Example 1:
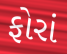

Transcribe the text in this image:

ફોરાં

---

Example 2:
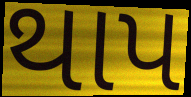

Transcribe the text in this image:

થાપ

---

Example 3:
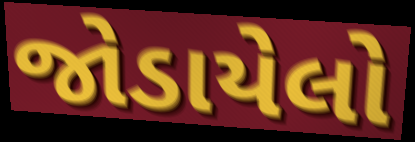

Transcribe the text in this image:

જોડાયેલો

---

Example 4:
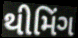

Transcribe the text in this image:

થીમિંગ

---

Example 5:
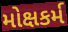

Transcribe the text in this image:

મોક્ષકર્મ